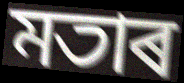
মতাৰ